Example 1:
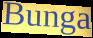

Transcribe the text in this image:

Bunga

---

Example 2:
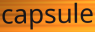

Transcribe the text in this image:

capsule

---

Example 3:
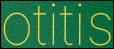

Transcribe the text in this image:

otitis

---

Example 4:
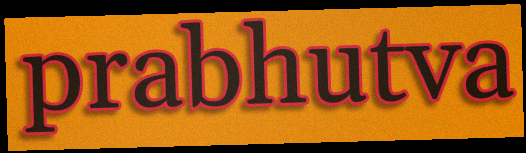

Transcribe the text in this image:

prabhutva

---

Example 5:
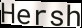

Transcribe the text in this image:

Hersh